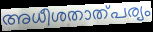
അധീശതാത്പര്യം